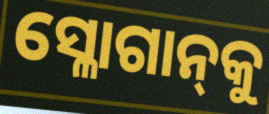
ସ୍ଳୋଗାନ୍‌କୁ